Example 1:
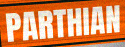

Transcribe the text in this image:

PARTHIAN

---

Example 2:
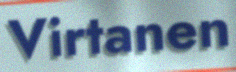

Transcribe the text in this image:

Virtanen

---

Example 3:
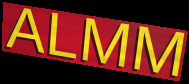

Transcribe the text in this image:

ALMM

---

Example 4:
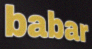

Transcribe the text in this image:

babar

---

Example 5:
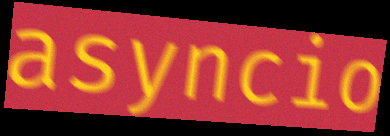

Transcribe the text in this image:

asyncio